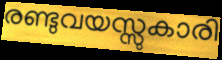
രണ്ടുവയസ്സുകാരി